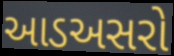
આડઅસરો